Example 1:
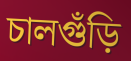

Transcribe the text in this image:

চালগুঁড়ি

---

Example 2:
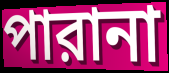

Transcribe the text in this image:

পারানা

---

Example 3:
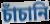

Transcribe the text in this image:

চাঁচানি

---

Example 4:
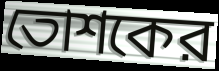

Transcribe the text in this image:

তোশকের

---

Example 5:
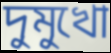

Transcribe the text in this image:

দুমুখো